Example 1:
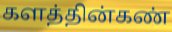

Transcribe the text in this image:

களத்தின்கண்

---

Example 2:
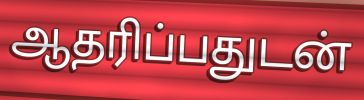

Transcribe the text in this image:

ஆதரிப்பதுடன்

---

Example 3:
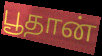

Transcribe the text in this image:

பூதான்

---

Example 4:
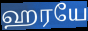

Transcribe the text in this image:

ஹரயே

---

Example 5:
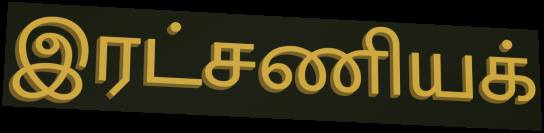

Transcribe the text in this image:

இரட்சணியக்